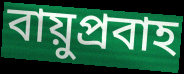
বায়ুপ্রবাহ